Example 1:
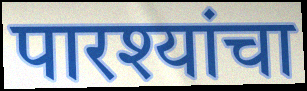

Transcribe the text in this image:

पारश्यांचा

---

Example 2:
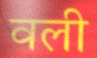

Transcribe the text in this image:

वली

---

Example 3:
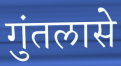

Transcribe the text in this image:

गुंतलासे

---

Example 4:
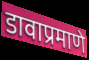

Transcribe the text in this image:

डावाप्रमाणे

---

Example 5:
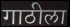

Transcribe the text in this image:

गाठीला